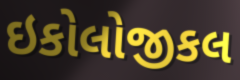
ઇકોલોજીકલ